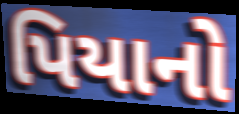
પિયાનો